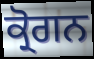
ਕ੍ਰੋਗਨ